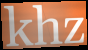
khz